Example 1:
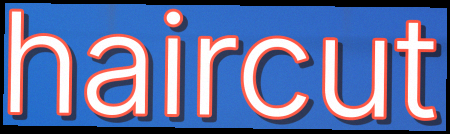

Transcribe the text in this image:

haircut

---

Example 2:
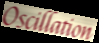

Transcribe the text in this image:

Oscillation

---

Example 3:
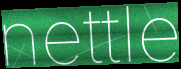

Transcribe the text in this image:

nettle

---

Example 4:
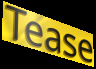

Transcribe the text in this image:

Tease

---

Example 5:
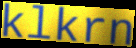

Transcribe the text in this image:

klkrn